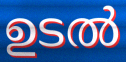
ഉടൽ